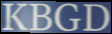
KBGD